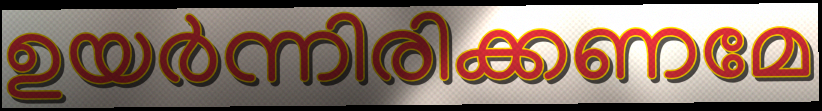
ഉയർന്നിരിക്കണമേ